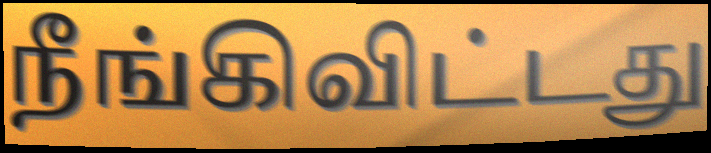
நீங்கிவிட்டது